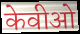
केवीओ